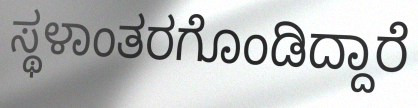
ಸ್ಥಳಾಂತರಗೊಂಡಿದ್ದಾರೆ